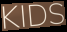
KIDS